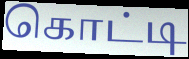
கொட்டி